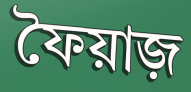
ফৈয়াজ়